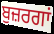
ਬੁਜ਼ਰਗਾਂ